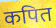
कपित